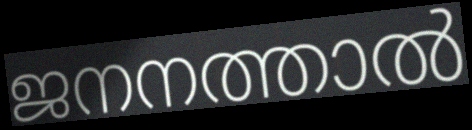
ജനനത്താൽ